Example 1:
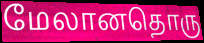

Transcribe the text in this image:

மேலானதொரு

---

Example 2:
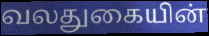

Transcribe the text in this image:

வலதுகையின்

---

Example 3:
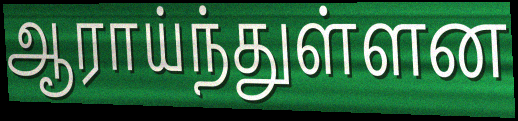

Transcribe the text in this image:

ஆராய்ந்துள்ளன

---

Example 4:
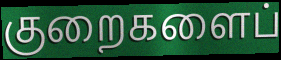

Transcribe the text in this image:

குறைகளைப்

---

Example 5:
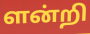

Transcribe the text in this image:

ளன்றி